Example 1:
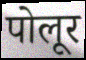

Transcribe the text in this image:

पोलूर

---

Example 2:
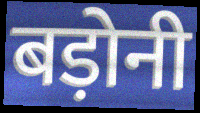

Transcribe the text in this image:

बड़ोनी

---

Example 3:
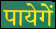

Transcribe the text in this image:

पायेगें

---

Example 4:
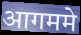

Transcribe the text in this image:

आगममे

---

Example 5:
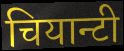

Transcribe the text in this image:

चियान्टी